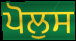
ਪੋਲੁਸ